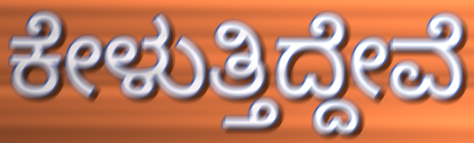
ಕೇಳುತ್ತಿದ್ದೇವೆ